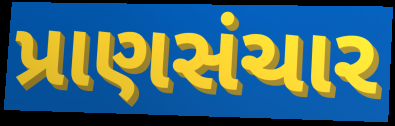
પ્રાણસંચાર